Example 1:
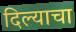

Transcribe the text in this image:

दिल्याचा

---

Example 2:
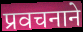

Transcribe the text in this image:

प्रवचनाने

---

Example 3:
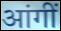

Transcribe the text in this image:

आंगीं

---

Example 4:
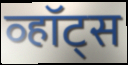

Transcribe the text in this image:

व्हॉट्स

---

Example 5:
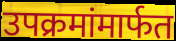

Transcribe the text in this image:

उपक्रमांमार्फत